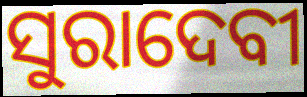
ସୁରାଦେବୀ